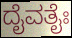
ದೈವತೈಃ